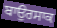
ਬਾਉਰਸਾਕ